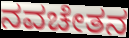
ನವಚೇತನ